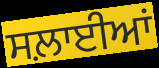
ਸਲ਼ਾਈਆਂ